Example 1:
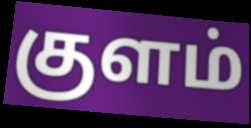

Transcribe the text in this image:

குளம்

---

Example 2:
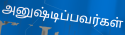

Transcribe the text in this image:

அனுஷ்டிப்பவர்கள்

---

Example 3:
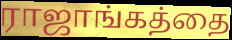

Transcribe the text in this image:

ராஜாங்கத்தை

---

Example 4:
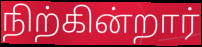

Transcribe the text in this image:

நிற்கின்றார்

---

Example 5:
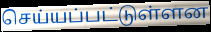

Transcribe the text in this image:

செய்யப்பட்டுள்ளன